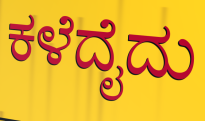
ಕಳೆದೈದು